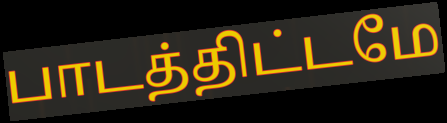
பாடத்திட்டமே